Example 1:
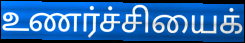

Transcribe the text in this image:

உணர்ச்சியைக்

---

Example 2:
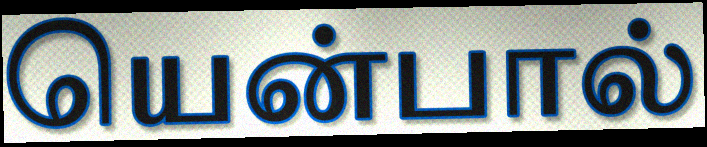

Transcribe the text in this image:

யென்பால்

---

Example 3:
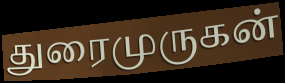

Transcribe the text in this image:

துரைமுருகன்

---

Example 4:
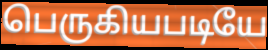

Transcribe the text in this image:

பெருகியபடியே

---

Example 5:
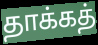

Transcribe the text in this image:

தாக்கத்